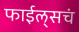
फाईल्सचं